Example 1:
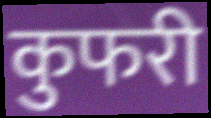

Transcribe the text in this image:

कुफरी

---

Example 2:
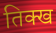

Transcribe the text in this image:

तिक्ख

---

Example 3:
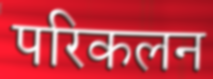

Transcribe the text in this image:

परिकलन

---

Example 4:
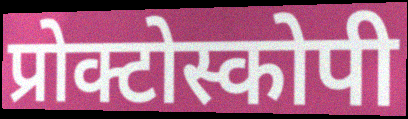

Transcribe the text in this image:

प्रोक्टोस्कोपी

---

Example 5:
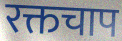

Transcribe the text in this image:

रक्तचाप